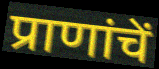
प्राणांचें